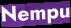
Nempu